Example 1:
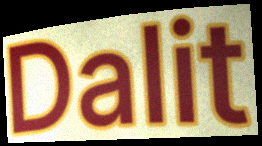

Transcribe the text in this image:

Dalit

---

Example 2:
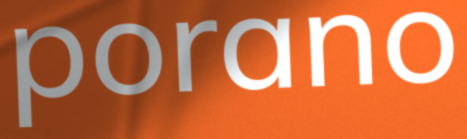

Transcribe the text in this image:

porano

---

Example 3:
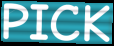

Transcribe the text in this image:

PICK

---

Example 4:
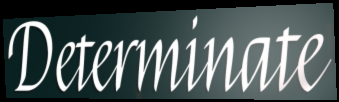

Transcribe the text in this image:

Determinate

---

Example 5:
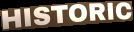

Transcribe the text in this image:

HISTORIC